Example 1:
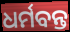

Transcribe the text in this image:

ଧର୍ମବନ୍ତ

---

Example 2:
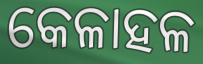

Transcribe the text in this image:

କେଳାହଳ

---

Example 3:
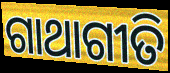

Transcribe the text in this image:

ଗାଥାଗୀତି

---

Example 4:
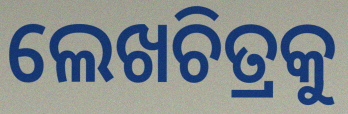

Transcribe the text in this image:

ଲେଖଚିତ୍ରକୁ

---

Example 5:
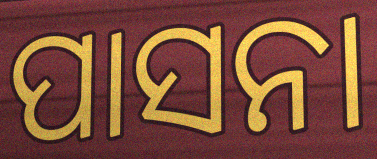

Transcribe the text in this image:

ପାସନା